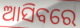
ଆସିବରେ